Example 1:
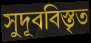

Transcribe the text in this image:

সুদূববিস্তৃত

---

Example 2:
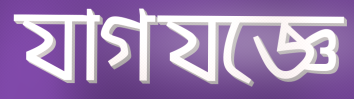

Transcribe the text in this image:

যাগযজ্ঞে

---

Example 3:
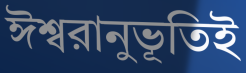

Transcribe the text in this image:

ঈশ্বরানুভূতিই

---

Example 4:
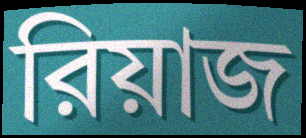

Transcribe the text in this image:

রিয়াজ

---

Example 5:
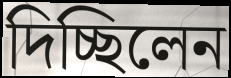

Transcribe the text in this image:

দিচ্ছিলেন